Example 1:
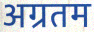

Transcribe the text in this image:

अग्रतम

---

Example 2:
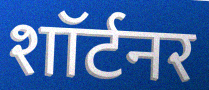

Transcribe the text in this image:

शॉर्टनर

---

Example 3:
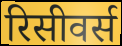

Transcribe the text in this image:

रिसीवर्स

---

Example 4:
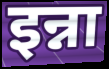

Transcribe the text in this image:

इन्ना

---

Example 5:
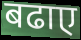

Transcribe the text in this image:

बढाए